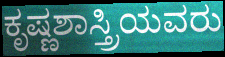
ಕೃಷ್ಣಶಾಸ್ತ್ರಿಯವರು